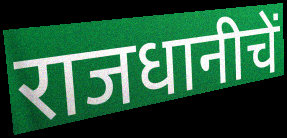
राजधानीचें